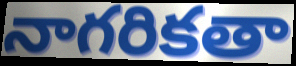
నాగరికతా